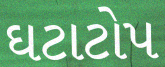
ઘટાટોપ